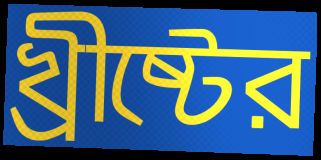
খ্রীষ্টের